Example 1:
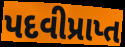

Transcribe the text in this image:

પદવીપ્રાપ્ત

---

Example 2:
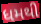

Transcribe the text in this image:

ધમથી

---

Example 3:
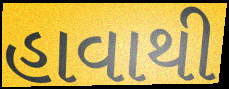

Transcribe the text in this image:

હાવાથી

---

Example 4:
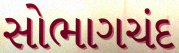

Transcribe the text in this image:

સોભાગચંદ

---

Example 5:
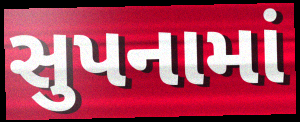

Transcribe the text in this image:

સુપનામાં